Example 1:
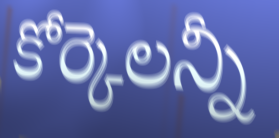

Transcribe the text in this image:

కోర్కెలన్నీ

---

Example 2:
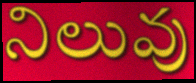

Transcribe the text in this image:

నిలువు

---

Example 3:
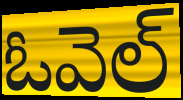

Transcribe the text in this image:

ఓవెల్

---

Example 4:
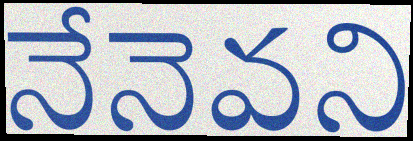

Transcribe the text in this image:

నేనెవని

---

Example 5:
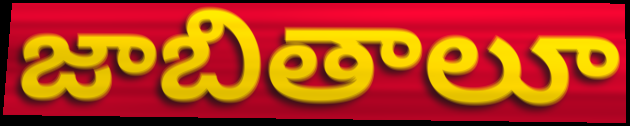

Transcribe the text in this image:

జాబితాలూ